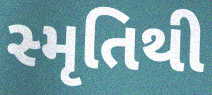
સ્મૃતિથી